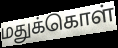
மதுக்கொள்